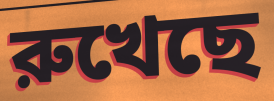
রুখেছে